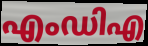
എംഡിഎ